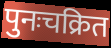
पुनःचक्रित